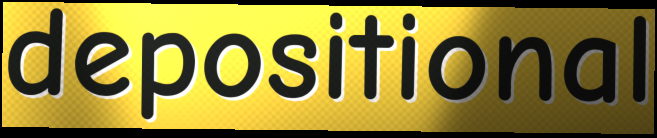
depositional